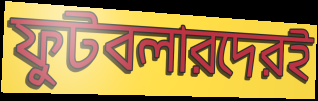
ফুটবলারদেরই